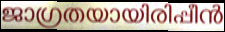
ജാഗ്രതയായിരിപ്പീൻ